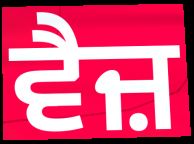
ਵੈਜ਼